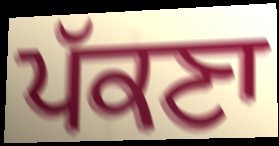
ਪੱਕਣਾ